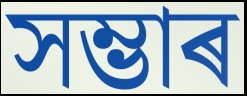
সম্ভাৰ